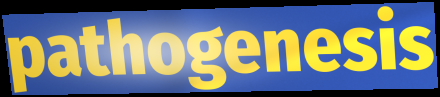
pathogenesis